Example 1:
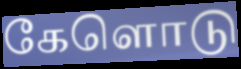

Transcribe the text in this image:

கேளொடு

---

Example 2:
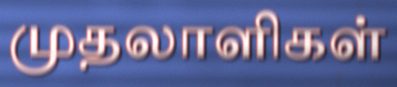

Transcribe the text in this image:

முதலாளிகள்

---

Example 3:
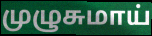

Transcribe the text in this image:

முழுசுமாய்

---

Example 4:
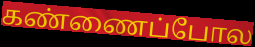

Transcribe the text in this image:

கண்ணைப்போல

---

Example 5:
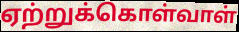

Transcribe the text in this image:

ஏற்றுக்கொள்வாள்